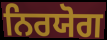
ਨਿਰਯੋਗ